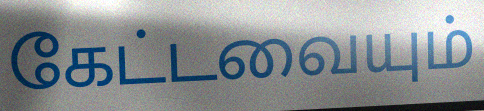
கேட்டவையும்